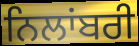
ਨਿਲਾਂਬਰੀ